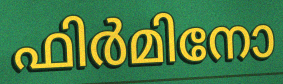
ഫിർമിനോ